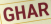
GHAR